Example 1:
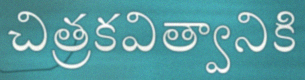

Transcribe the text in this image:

చిత్రకవిత్వానికి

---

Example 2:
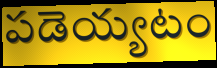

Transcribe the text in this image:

పడెయ్యటం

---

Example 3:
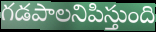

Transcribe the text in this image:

గడపాలనిపిస్తుంది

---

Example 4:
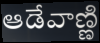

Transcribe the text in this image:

ఆడేవాణ్ణి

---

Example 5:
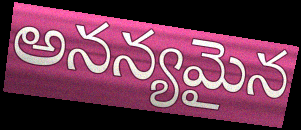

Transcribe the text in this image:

అనన్యమైన